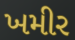
ખમીર